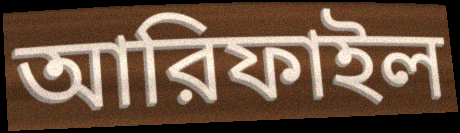
আরিফাইল